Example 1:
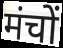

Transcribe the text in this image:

मंचों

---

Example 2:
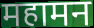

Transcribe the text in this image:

महामन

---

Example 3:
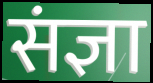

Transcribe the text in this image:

संज्ञा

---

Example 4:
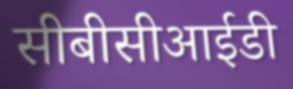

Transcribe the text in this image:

सीबीसीआईडी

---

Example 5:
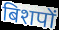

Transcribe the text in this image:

बिशपों